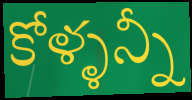
కోళ్ళన్నీ